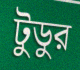
টুডুর